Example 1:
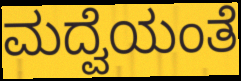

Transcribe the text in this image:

ಮದ್ವೆಯಂತೆ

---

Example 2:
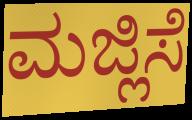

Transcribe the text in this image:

ಮಜ್ಲಿಸೆ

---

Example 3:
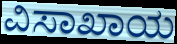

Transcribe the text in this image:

ವಿಸಾಖಾಯ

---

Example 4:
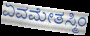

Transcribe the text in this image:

ಏವಮೇತಸ್ಮಿಂ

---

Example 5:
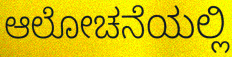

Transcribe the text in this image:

ಆಲೋಚನೆಯಲ್ಲಿ